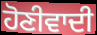
ਹੋਣੀਵਾਦੀ